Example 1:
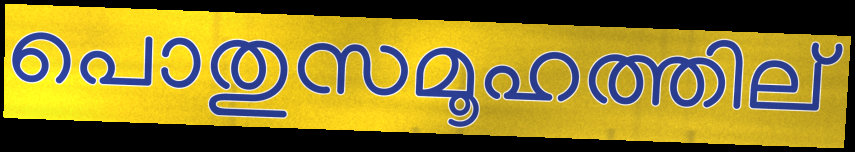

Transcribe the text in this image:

പൊതുസമൂഹത്തില്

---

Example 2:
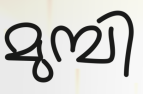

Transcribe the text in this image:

മുമ്പി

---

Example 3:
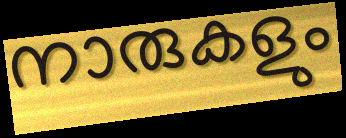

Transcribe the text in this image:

നാരുകളും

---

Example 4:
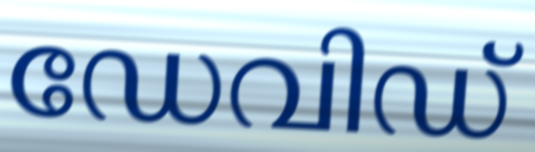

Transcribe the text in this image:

ഡേവിഡ്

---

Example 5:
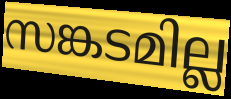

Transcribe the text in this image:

സങ്കടമില്ല